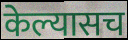
केल्यासच